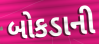
બોકડાની